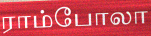
ராம்போலா